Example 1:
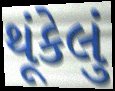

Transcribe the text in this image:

થૂંકેલું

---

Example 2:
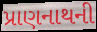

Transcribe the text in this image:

પ્રાણનાથની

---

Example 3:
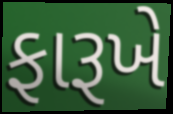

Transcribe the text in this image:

ફારૂખે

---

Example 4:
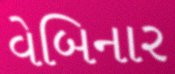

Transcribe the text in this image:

વેબિનાર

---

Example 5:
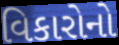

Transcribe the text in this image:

વિકારોનો